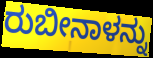
ರುಬೀನಾಳನ್ನು